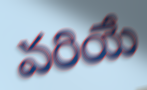
వరియే